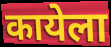
कायेला